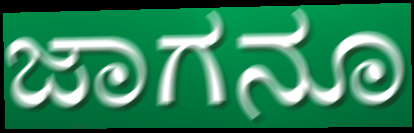
ಜಾಗನೂ